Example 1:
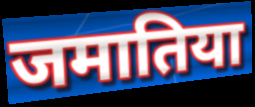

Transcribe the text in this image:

जमातिया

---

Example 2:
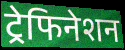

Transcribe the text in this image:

ट्रेफिनेशन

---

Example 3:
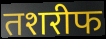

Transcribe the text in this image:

तशरीफ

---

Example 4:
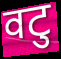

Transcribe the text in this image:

वटु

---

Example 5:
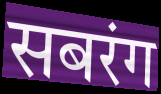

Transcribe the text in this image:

सबरंग